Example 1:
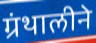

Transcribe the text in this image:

ग्रंथालीने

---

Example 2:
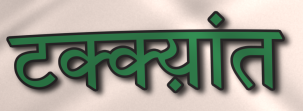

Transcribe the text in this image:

टक्क्य़ांत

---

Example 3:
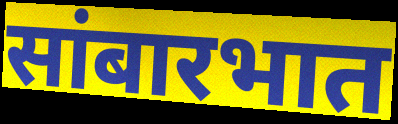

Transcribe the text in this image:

सांबारभात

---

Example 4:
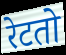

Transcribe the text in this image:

रेटतो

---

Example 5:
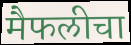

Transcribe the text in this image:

मैफलीचा